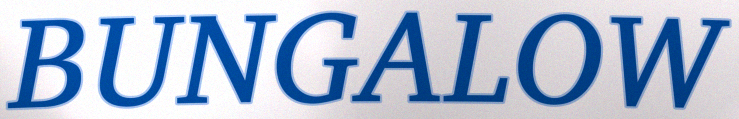
BUNGALOW